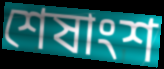
শেষাংশ